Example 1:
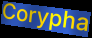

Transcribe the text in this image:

Corypha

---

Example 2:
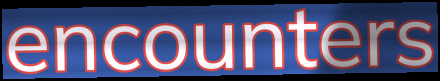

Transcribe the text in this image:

encounters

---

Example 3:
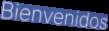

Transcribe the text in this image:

Bienvenidos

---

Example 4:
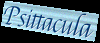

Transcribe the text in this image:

Psittacula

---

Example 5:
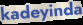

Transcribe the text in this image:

kadeyinda